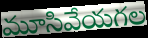
మూసివేయగల